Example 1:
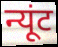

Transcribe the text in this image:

न्यूंट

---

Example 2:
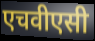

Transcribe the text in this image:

एचवीएसी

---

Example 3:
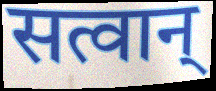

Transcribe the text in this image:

सत्वान्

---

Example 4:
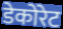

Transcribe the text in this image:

डेकोरेट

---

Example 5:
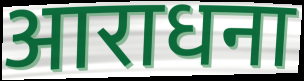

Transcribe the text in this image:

आराधना